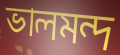
ভালমন্দ